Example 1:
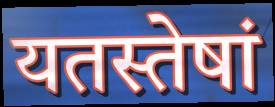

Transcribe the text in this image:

यतस्तेषां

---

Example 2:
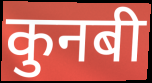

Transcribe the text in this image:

कुनबी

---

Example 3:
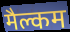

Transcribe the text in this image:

मैल्कम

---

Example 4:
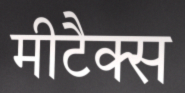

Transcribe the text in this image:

मीटैक्स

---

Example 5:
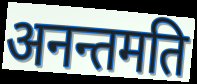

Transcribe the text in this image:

अनन्तमति